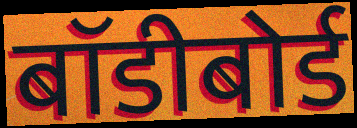
बॉडीबोर्ड